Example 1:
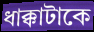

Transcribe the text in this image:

ধাক্কাটাকে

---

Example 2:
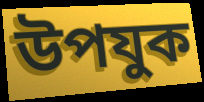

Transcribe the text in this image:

উপযুক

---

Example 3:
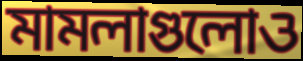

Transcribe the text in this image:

মামলাগুলোও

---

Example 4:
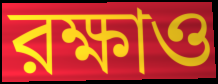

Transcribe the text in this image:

রক্ষাও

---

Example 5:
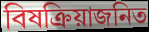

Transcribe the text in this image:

বিষক্রিয়াজনিত